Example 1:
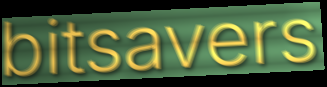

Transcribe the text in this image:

bitsavers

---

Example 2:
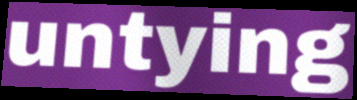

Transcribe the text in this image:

untying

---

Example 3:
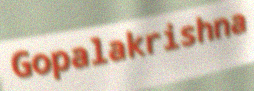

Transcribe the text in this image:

Gopalakrishna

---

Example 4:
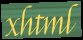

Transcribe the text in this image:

xhtml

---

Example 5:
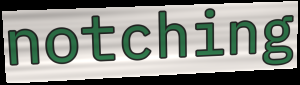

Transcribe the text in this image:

notching